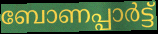
ബോണപ്പാർട്ട്